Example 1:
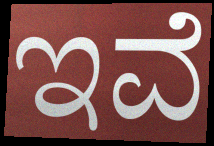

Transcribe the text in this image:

ಇವೆ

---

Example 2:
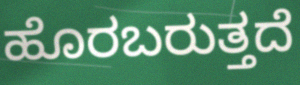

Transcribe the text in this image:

ಹೊರಬರುತ್ತದೆ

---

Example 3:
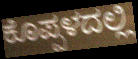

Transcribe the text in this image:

ಕೊಪ್ಪಳದಲ್ಲಿ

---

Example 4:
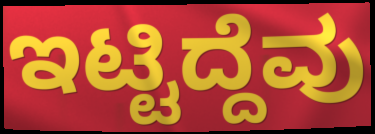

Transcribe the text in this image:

ಇಟ್ಟಿದ್ದೆವು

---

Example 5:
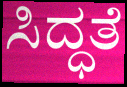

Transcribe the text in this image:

ಸಿದ್ಧತೆ